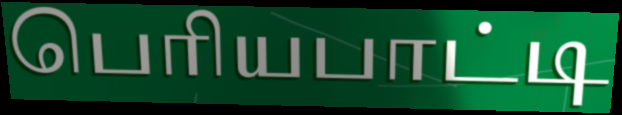
பெரியபாட்டி